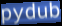
pydub